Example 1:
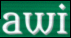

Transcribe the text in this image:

awi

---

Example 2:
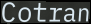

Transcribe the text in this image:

Cotran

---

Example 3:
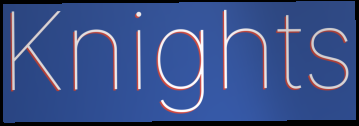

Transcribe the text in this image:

Knights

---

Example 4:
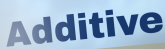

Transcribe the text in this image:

Additive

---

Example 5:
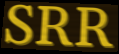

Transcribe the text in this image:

SRR